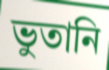
ভুতানি